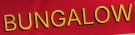
BUNGALOW